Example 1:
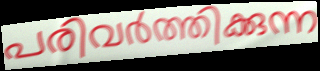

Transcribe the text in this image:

പരിവർത്തിക്കുന്ന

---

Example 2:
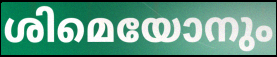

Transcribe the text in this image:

ശിമെയോനും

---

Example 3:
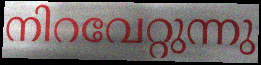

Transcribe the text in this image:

നിറവേറ്റുന്നു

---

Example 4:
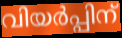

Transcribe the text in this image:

വിയർപ്പിന്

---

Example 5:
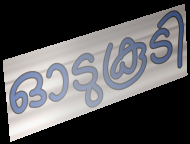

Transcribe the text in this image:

ഓടുകൂടി